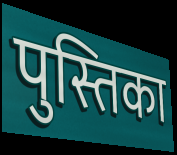
पुस्तिका